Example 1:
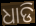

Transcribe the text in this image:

ଧାଡି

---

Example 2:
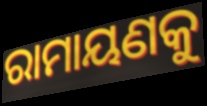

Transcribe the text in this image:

ରାମାୟଣକୁ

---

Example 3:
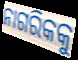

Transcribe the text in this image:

ନାଗରିକକୁ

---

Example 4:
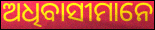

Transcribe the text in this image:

ଅଧିବାସୀମାନେ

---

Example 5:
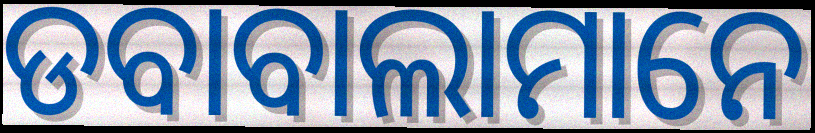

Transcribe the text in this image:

ଡବାବାଲାମାନେ